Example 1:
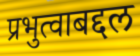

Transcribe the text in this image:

प्रभुत्वाबद्दल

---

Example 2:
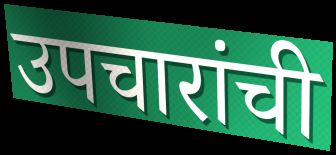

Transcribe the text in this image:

उपचारांची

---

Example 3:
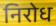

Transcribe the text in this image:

निरोध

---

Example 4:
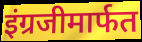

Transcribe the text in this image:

इंग्रजीमार्फत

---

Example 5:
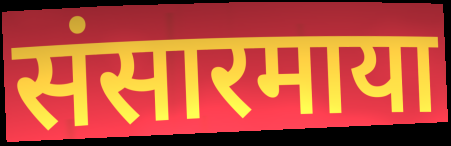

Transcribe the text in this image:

संसारमाया